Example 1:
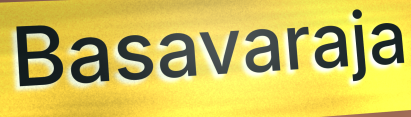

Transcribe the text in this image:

Basavaraja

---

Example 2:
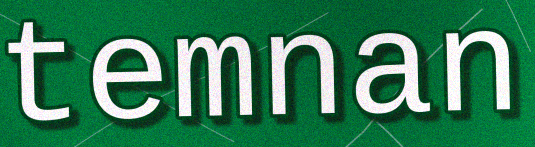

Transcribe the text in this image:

temnan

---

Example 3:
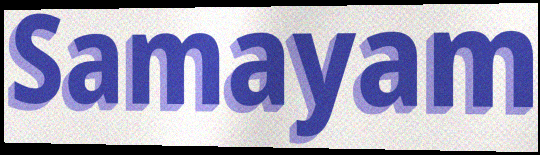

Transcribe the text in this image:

Samayam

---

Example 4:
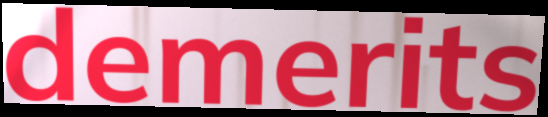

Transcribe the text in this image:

demerits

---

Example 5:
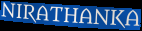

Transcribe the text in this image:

NIRATHANKA